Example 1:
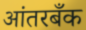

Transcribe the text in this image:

आंतरबँक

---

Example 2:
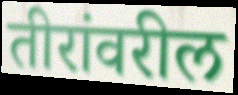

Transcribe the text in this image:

तीरांवरील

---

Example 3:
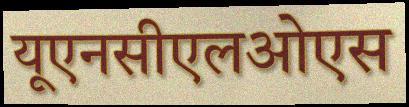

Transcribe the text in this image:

यूएनसीएलओएस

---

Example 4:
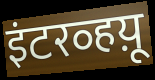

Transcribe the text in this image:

इंटरव्हय़ू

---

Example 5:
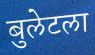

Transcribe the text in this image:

बुलेटला